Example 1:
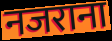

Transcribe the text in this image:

नजराना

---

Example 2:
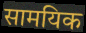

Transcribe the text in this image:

सामयिक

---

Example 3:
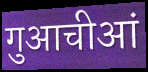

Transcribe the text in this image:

गुआचीआं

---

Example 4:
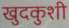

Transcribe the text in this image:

खुदकुशी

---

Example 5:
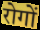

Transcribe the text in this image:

रोगों